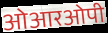
ओआरओपी